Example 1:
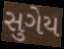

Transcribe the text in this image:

સુગેય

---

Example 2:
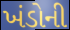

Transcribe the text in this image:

ખંડોની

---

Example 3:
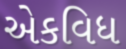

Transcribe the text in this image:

એકવિધ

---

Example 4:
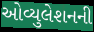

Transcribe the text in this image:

ઓવ્યુલેશનની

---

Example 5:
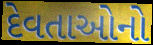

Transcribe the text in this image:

દેવતાઓનો